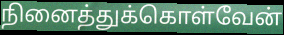
நினைத்துக்கொள்வேன்